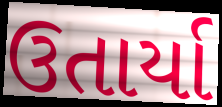
ઉતાર્યા